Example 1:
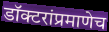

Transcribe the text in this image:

डॉक्टरांप्रमाणेच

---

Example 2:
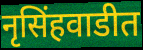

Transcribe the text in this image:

नृसिंहवाडीत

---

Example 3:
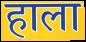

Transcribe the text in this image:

हाला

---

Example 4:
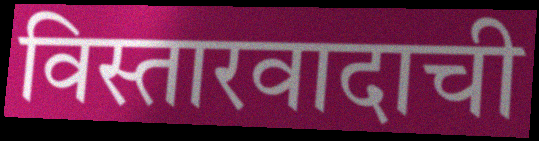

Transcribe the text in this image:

विस्तारवादाची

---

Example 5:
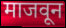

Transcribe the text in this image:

माजवून